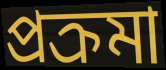
প্রক্রমা